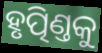
ହୃତ୍ପିଣ୍ତକୁ